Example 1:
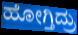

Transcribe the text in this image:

ಹೋಗ್ತಿದ್ರು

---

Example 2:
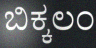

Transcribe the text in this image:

ಬಿಕ್ಕಲಂ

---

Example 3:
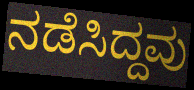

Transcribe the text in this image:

ನಡೆಸಿದ್ದವು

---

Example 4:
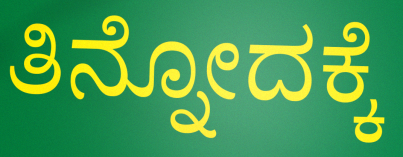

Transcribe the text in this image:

ತಿನ್ನೋದಕ್ಕೆ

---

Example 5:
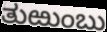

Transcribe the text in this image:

ತುಱುಂಬು